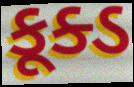
કૂક્ડ